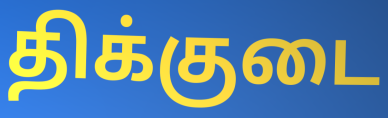
திக்குடை